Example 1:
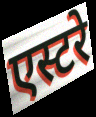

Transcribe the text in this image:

एस्टरे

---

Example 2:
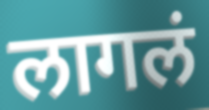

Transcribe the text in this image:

लागलं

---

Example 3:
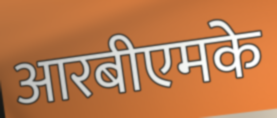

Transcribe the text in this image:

आरबीएमके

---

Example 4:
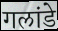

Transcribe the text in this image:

गलांडे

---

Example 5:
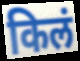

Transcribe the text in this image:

किलं